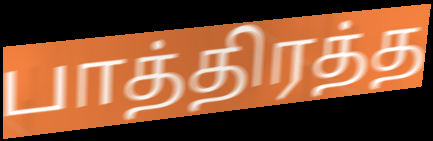
பாத்திரத்த